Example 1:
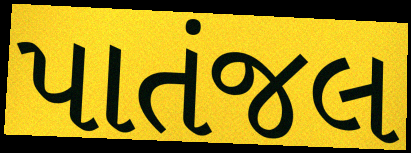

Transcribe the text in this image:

પાતંજલ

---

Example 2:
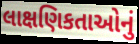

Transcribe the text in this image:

લાક્ષણિકતાઓનું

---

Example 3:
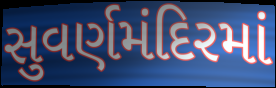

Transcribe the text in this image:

સુવર્ણમંદિરમાં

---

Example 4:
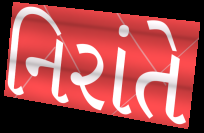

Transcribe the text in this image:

નિરાંતે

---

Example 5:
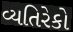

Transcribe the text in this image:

વ્યતિરેકો